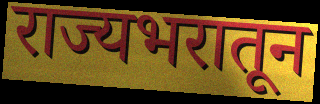
राज्यभरातून